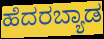
ಹೆದರಬ್ಯಾಡ